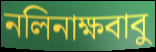
নলিনাক্ষবাবু